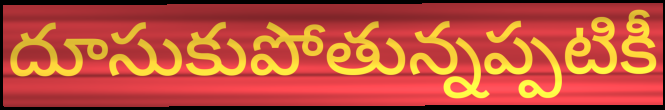
దూసుకుపోతున్నప్పటికీ